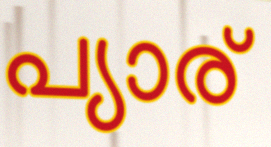
പ്യാര്